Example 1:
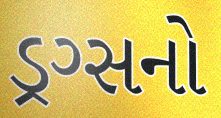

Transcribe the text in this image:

ડ્રગ્સનો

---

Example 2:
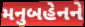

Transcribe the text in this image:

મનુબહેનને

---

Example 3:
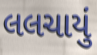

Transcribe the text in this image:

લલચાયું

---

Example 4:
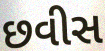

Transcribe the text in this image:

છવીસ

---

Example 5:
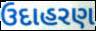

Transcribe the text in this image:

ઉદાહરણ